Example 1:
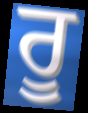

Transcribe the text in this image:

ਰੂ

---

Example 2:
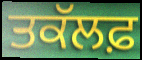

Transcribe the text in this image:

ਤਕੱਲਫ਼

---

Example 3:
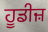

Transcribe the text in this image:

ਹੂਡੀਜ਼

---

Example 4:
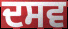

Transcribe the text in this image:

ਦਸਵ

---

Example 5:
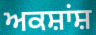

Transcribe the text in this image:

ਅਕਸ਼ਾਂਸ਼